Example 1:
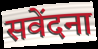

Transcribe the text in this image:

सवेंदना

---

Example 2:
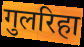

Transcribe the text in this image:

गुलरिहा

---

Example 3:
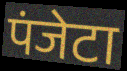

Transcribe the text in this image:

पंजेटा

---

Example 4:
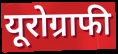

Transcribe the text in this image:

यूरोग्राफी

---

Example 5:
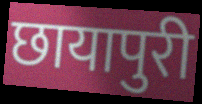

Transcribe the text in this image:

छायापुरी